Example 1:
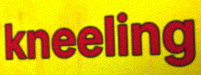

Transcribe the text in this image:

kneeling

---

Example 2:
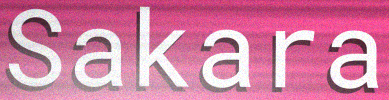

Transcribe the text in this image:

Sakara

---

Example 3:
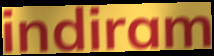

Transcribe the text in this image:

indiram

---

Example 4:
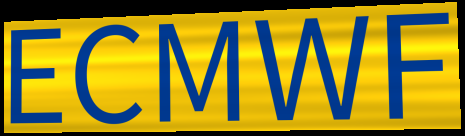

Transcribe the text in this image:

ECMWF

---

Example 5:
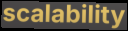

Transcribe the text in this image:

scalability